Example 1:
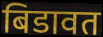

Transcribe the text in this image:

बिडावत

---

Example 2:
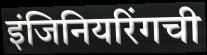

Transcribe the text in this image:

इंजिनियरिंगची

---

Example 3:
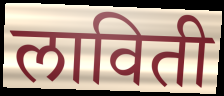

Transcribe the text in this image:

लाविती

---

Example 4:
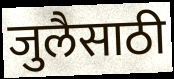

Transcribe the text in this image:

जुलैसाठी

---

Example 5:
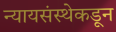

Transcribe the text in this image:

न्यायसंस्थेकडून